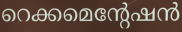
റെക്കമെന്റേഷൻ